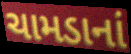
ચામડાનાં